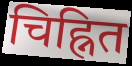
चिह्नित